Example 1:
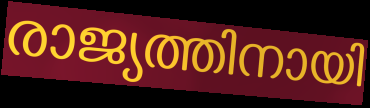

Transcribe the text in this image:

രാജ്യത്തിനായി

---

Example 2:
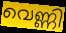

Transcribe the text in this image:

വെണ്ണി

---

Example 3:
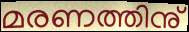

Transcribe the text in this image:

മരണത്തിനു്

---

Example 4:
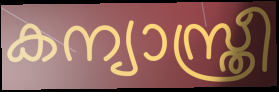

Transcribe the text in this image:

കന്യാസ്ത്രീ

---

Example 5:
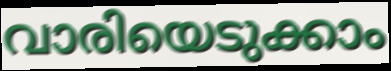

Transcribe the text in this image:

വാരിയെടുക്കാം